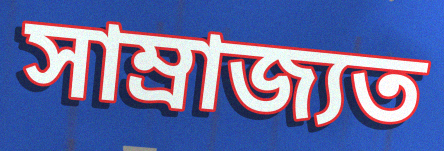
সাম্ৰাজ্যত